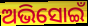
ଅଭିସୋଇଁ